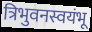
त्रिभुवनस्वयंभू